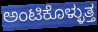
ಅಂಟಿಕೊಳ್ಳುತ್ತ